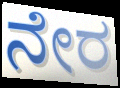
ನೇರ